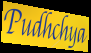
Pudhchya